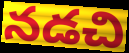
నడచి